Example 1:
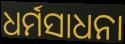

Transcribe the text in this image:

ଧର୍ମସାଧନା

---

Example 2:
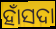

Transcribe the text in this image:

ହାଁସଦା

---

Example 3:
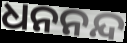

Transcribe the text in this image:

ଧନନନ୍ଦ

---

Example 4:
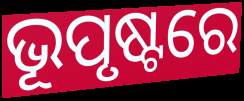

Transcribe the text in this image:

ଭୂପୃଷ୍ଟରେ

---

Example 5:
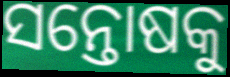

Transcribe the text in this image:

ସନ୍ତୋଷକୁ